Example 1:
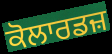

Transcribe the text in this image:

ਕੋਲਾਰਡਜ਼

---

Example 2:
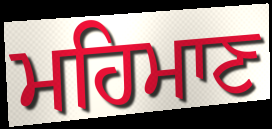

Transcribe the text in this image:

ਮਹਿਮਾਣ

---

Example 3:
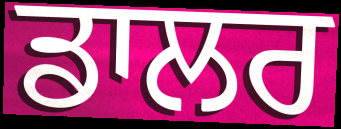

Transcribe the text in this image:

ਡਾਲਰ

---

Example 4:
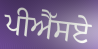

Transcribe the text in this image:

ਪੀਐੱਸਏ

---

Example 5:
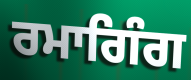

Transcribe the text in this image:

ਰਮਾਗਿੰਗ